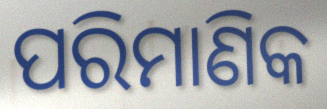
ପରିମାଣିକ